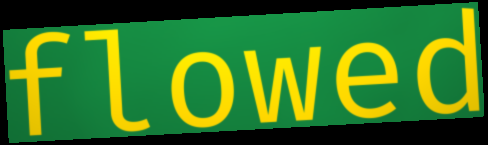
flowed